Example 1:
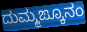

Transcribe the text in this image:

ದುಮ್ಮಙ್ಕೂನಂ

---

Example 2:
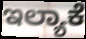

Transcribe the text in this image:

ಇಲ್ಯಾಕೆ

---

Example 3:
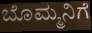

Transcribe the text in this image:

ಬೊಮ್ಮನಿಗೆ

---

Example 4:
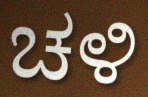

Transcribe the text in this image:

ಚಳಿ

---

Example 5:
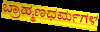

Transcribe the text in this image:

ಬ್ರಾಹ್ಮಣಧರ್ಮಗಳ